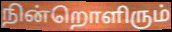
நின்றொளிரும்